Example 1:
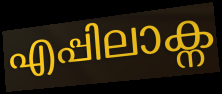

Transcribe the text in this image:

എപ്പിലാക്ന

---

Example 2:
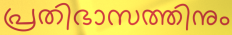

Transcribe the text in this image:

പ്രതിഭാസത്തിനും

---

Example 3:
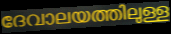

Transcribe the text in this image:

ദേവാലയത്തിലുള്ള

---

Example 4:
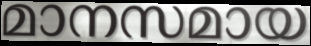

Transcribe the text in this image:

മാനസമായ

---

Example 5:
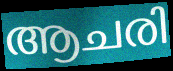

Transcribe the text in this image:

ആചരി